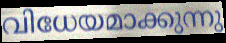
വിധേയമാക്കുന്നു